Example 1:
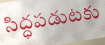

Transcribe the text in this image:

సిద్ధపడుటకు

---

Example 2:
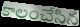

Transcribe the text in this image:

కాలంచేసిన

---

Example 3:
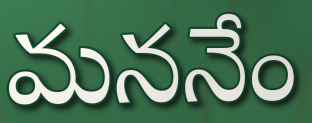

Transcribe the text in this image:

మననేం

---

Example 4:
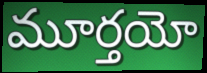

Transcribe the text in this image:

మూర్తయో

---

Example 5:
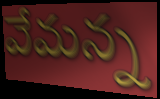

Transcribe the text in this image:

వేమన్న